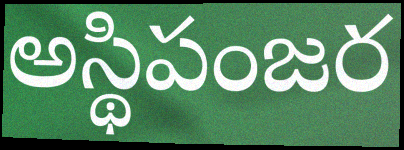
అస్థిపంజర